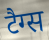
टैग्स